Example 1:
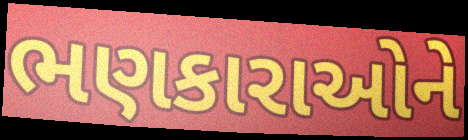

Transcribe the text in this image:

ભણકારાઓને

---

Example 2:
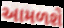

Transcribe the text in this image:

આમળશે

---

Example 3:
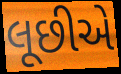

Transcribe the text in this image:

લૂછીએ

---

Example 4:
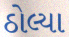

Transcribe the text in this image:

ઠોલ્યા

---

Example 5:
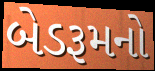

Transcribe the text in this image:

બેડરૂમનો